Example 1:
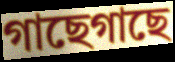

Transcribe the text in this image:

গাছেগাছে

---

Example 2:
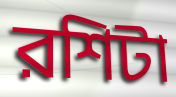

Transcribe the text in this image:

রশিটা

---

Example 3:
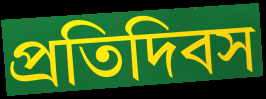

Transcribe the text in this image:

প্রতিদিবস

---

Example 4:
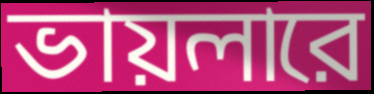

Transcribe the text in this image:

ভায়লারে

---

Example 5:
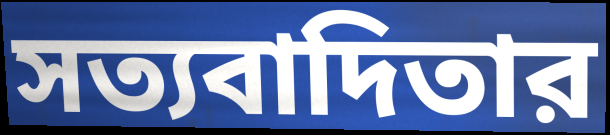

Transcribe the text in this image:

সত্যবাদিতার